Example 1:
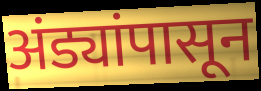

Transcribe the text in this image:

अंड्यांपासून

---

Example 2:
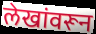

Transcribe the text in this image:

लेखांवरून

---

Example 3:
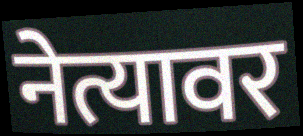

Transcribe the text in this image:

नेत्यावर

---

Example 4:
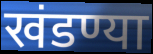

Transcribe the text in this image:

खंडण्या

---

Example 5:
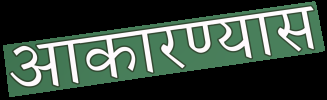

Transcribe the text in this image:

आकारण्यास